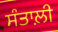
ਸੰਤਾਲ਼ੀ